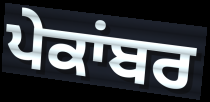
ਪੇਕਾਂਬਰ